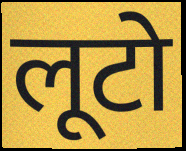
लूटो